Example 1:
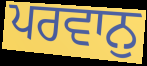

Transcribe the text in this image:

ਪਰਵਾਨੁ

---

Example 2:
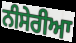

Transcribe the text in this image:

ਨੀਸੇਰੀਆ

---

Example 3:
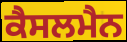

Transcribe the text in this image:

ਕੈਸਲਮੈਨ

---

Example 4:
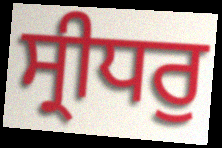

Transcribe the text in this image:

ਸ੍ਰੀਧਰੁ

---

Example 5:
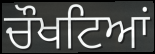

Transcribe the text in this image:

ਚੌਖਟਿਆਂ